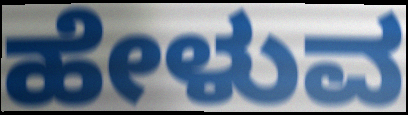
ಹೇಳುವ